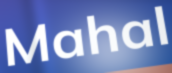
Mahal